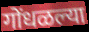
गोंधळल्या